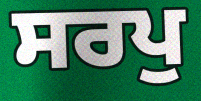
ਸਰਪੁ